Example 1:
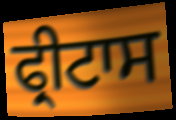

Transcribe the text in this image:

ਫ੍ਰੀਟਾਸ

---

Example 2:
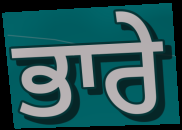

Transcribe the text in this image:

ਭਾਰੇ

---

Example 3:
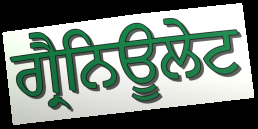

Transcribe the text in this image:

ਗ੍ਰੈਨਿਊਲੇਟ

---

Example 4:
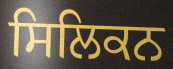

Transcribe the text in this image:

ਸਿਲਿਕਨ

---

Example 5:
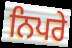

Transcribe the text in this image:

ਨਿਪਰੇ